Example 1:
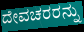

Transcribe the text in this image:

ದೇವಚರರನ್ನು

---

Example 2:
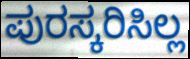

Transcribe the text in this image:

ಪುರಸ್ಕರಿಸಿಲ್ಲ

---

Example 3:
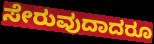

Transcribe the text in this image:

ಸೇರುವುದಾದರೂ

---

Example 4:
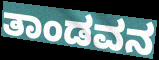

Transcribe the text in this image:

ತಾಂಡವನ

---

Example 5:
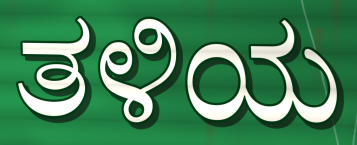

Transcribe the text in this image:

ತಳಿಯ